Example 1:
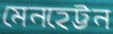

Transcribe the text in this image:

মেনহেট্টন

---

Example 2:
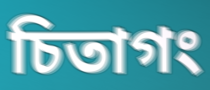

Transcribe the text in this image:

চিতাগং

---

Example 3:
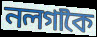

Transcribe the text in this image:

নলগাকৈ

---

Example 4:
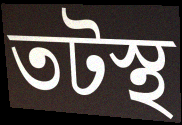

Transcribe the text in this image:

তটস্থ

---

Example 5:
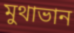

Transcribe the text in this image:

মুথাভান